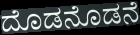
ದೊಡನೊಡನೆ